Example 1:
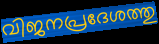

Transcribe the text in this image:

വിജനപ്രദേശത്തു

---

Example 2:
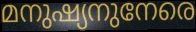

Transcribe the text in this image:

മനുഷ്യനുനേരെ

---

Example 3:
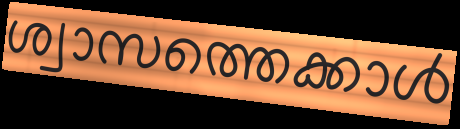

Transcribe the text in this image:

ശ്വാസത്തെക്കാൾ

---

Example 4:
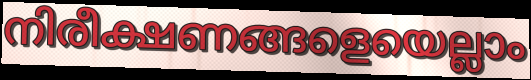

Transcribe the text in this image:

നിരീക്ഷണങ്ങളെയെല്ലാം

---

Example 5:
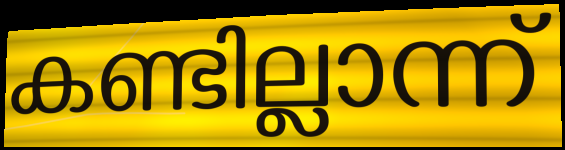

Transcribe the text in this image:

കണ്ടില്ലാന്ന്